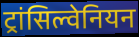
ट्रांसिल्वेनियन